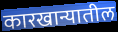
कारखान्यातील